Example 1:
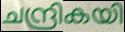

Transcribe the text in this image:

ചന്ദ്രികയി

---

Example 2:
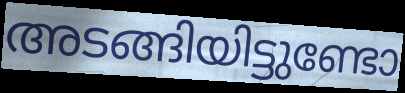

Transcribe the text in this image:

അടങ്ങിയിട്ടുണ്ടോ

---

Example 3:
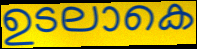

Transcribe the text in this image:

ഉടലാകെ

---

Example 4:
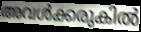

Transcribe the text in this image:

അവൾക്കരുകിൽ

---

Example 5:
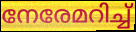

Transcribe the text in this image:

നേരേമറിച്ച്